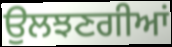
ਉਲਝਣਗੀਆਂ